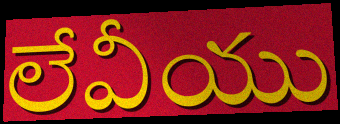
లేవీయు